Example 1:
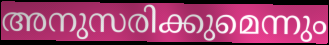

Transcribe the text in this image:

അനുസരിക്കുമെന്നും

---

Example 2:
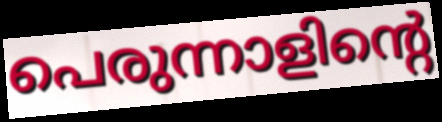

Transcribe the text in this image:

പെരുന്നാളിന്റെ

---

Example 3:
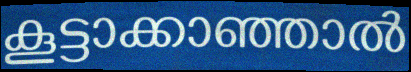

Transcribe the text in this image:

കൂട്ടാക്കാഞ്ഞാൽ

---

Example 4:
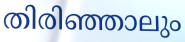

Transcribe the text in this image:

തിരിഞ്ഞാലും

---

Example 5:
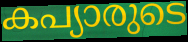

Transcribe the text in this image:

കപ്യാരുടെ